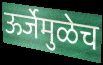
ऊर्जेमुळेच